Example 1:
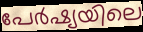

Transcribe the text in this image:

പേർഷ്യയിലെ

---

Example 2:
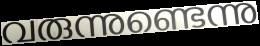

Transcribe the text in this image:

വരുന്നുണ്ടെന്നു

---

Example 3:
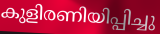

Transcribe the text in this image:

കുളിരണിയിപ്പിച്ചു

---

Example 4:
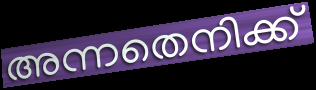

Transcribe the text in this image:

അന്നതെനിക്ക്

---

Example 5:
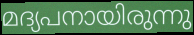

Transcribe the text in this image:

മദ്യപനായിരുന്നു